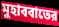
মুহাববাতের